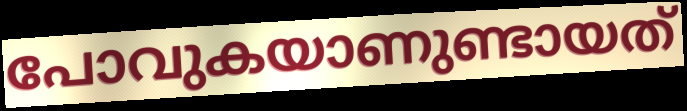
പോവുകയാണുണ്ടായത്